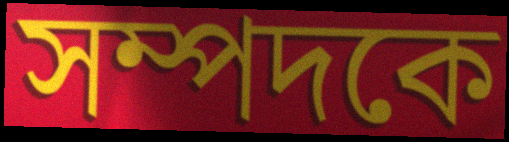
সম্পদকে